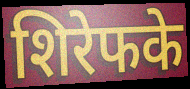
शिरेफके